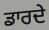
ਡਾਰਦੇ